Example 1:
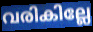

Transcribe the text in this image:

വരികില്ലേ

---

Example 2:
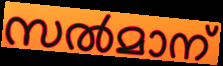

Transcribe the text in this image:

സൽമാന്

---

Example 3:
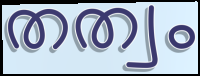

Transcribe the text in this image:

തത്വം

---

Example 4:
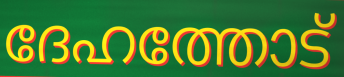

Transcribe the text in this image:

ദേഹത്തോട്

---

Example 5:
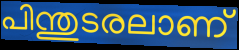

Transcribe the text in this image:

പിന്തുടരലാണ്